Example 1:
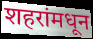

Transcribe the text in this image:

शहरांमधून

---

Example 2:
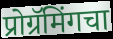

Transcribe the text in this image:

प्रोग्रॅमिंगचा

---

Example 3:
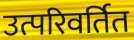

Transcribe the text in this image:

उत्परिवर्तित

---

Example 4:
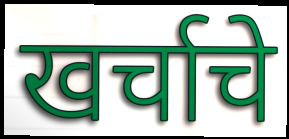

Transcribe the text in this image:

खर्चाचे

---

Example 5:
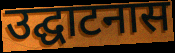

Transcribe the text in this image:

उद्घाटनास